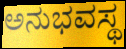
ಅನುಭವಸ್ಥ